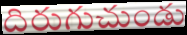
దిరుగుచుండు